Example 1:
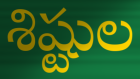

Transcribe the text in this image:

శిష్టుల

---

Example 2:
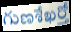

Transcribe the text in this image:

గుణశేఖర్తో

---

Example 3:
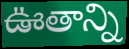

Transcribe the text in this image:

ఊతాన్ని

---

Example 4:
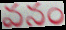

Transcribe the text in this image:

వనం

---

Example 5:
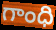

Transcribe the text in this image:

గాంధి